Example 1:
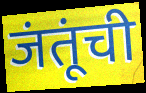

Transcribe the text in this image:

जंतूंची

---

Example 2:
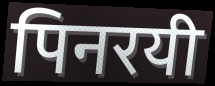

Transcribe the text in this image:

पिनरयी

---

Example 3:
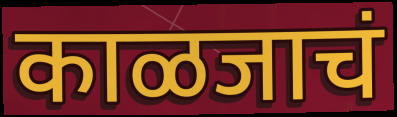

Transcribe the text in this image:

काळजाचं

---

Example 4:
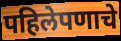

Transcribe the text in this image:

पहिलेपणाचे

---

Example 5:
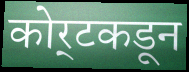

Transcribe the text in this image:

कोर्टकडून